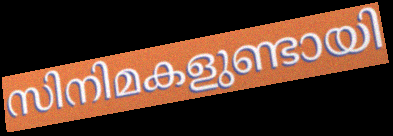
സിനിമകളുണ്ടായി